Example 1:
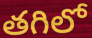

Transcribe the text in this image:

తగిలో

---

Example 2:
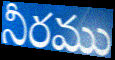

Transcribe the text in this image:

నీరము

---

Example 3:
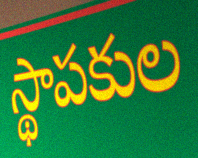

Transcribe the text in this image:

స్థాపకుల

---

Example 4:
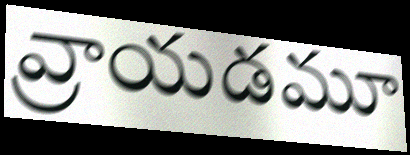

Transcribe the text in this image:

వ్రాయడమూ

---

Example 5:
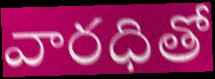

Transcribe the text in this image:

వారధితో